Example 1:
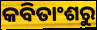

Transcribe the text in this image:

କବିତାଂଶରୁ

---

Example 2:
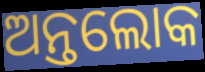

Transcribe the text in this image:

ଅନ୍ତଲୋକ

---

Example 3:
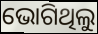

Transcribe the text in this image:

ଭୋଗିଥିଲୁ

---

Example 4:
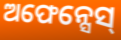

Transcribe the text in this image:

ଅଫେନ୍ସେସ୍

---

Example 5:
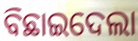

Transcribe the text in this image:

ବିଛାଇଦେଲା